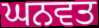
ਘਨਵਤ